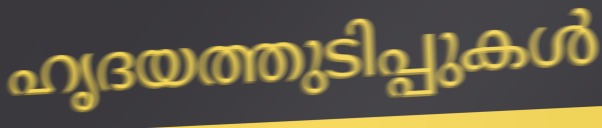
ഹൃദയത്തുടിപ്പുകൾ